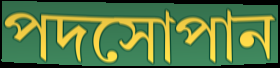
পদসোপান